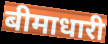
बीमाधारी